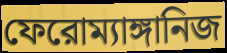
ফেরোম্যাঙ্গানিজ